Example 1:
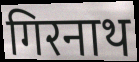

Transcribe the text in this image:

गिरनाथ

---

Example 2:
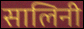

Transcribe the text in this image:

सालिनी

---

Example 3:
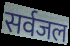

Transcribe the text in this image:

सर्वजल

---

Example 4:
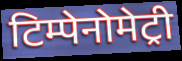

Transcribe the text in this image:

टिम्पेनोमेट्री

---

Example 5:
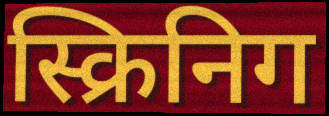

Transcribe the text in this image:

स्क्रिनिग